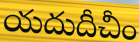
యదుదీచీం